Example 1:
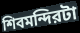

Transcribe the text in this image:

শিবমন্দিরটা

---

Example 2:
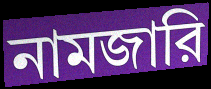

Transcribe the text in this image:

নামজারি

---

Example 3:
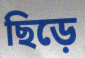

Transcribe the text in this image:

ছিড়ে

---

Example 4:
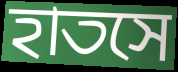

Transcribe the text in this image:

হাতসে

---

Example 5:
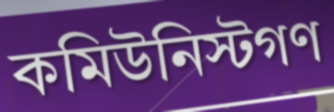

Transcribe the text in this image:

কমিউনিস্টগণ